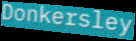
Donkersley